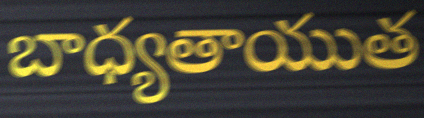
బాధ్యతాయుత